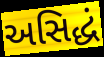
અસિદ્ધં